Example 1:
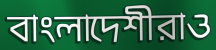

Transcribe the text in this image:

বাংলাদেশীরাও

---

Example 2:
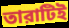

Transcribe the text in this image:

তারাটিই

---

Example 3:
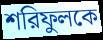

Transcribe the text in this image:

শরিফুলকে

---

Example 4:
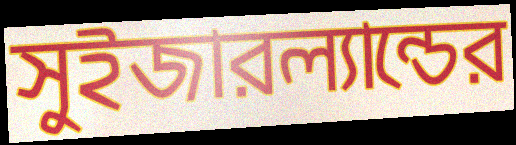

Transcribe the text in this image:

সুইজারল্যান্ডের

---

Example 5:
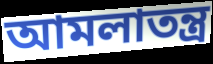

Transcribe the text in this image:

আমলাতন্ত্র